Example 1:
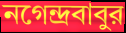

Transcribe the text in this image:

নগেন্দ্রবাবুর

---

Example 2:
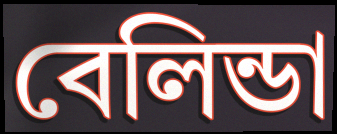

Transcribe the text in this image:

বেলিন্ডা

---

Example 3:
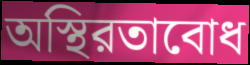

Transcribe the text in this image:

অস্থিরতাবোধ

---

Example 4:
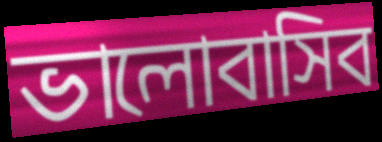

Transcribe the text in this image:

ভালোবাসিব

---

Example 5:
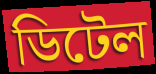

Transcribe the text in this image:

ডিটেল